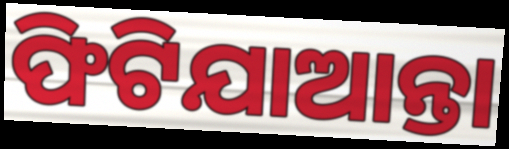
ଫିଟିଯାଆନ୍ତା